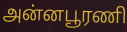
அன்னபூரணி